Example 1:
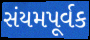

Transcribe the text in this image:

સંયમપૂર્વક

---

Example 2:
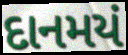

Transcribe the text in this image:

દાનમયં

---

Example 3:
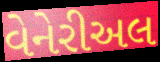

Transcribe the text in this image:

વેનેરીઅલ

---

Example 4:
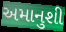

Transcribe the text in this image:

અમાનુશી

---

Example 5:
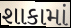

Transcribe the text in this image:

શાકામાં